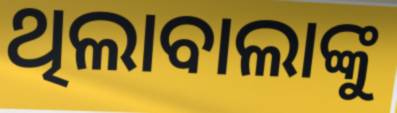
ଥିଲାବାଲାଙ୍କୁ